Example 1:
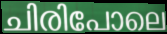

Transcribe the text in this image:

ചിരിപോലെ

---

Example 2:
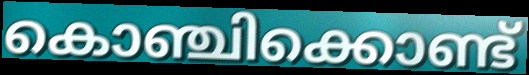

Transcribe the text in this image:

കൊഞ്ചിക്കൊണ്ട്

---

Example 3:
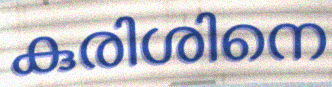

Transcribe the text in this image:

കുരിശിനെ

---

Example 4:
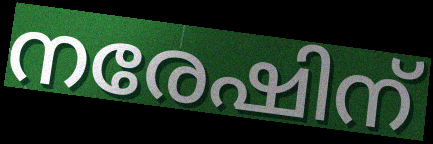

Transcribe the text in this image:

നരേഷിന്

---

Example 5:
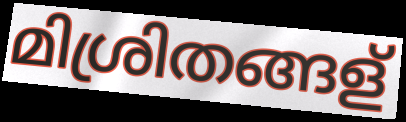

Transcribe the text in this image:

മിശ്രിതങ്ങള്